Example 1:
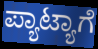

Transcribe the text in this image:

ಪ್ಯಾಟ್ಯಾಗೆ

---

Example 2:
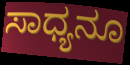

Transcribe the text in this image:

ಸಾಧ್ಯನೂ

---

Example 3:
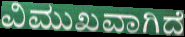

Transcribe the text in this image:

ವಿಮುಖವಾಗಿದೆ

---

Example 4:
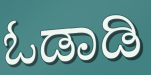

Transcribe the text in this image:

ಓಡಾಡಿ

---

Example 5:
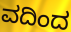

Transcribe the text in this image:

ವದಿಂದ